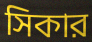
সিকার